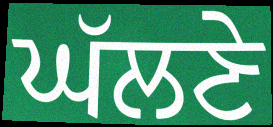
ਘੱਲਣੇ